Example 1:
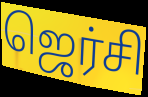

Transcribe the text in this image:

ஜெர்சி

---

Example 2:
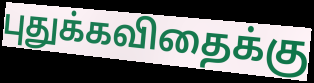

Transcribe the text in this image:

புதுக்கவிதைக்கு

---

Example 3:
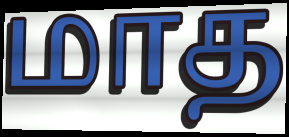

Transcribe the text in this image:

மாத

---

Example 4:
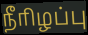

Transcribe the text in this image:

நீரிழப்பு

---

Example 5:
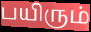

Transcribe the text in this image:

பயிரும்